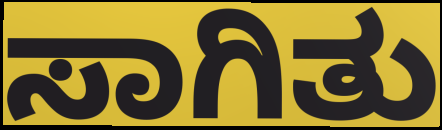
ಸಾಗಿತು